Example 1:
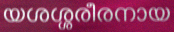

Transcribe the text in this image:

യശശ്ശരീരനായ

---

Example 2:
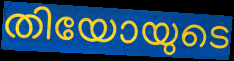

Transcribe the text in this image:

തിയോയുടെ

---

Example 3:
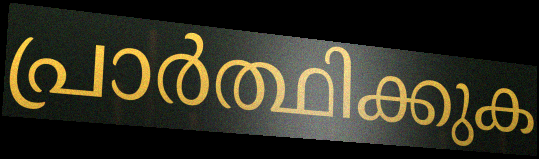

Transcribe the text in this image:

പ്രാർത്ഥിക്കുക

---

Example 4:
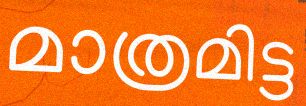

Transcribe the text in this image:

മാത്രമിട്ട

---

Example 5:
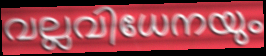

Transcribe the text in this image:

വല്ലവിധേനയും